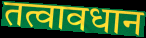
तत्‍वावधान